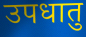
उपधातु